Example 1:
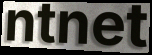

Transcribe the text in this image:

ntnet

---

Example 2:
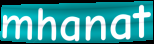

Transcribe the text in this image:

mhanat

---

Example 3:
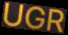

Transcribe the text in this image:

UGR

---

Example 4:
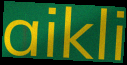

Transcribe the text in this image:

aikli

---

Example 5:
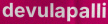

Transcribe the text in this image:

devulapalli